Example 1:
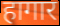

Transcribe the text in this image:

हागार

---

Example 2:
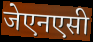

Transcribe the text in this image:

जेएनएसी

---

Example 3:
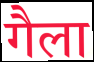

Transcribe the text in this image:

गैला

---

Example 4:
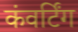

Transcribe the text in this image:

कंवर्टिंग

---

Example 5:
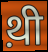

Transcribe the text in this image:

थ़ी